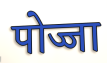
पोज्जा